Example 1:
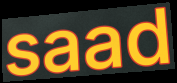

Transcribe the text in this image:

saad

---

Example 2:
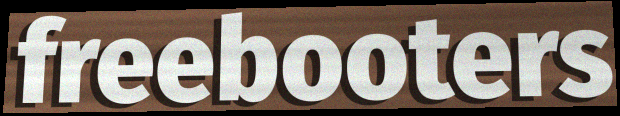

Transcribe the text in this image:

freebooters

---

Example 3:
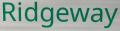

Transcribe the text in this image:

Ridgeway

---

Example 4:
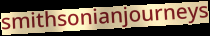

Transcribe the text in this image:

smithsonianjourneys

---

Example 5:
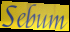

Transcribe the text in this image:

Sebum